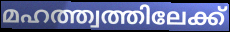
മഹത്ത്വത്തിലേക്ക്